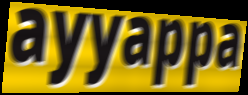
ayyappa